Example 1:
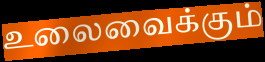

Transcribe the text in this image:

உலைவைக்கும்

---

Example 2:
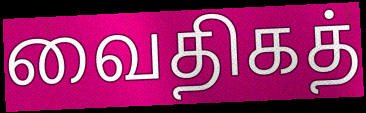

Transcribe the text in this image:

வைதிகத்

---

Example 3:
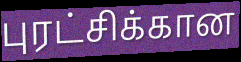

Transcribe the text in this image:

புரட்சிக்கான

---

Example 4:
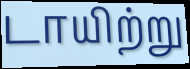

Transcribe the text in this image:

டாயிற்று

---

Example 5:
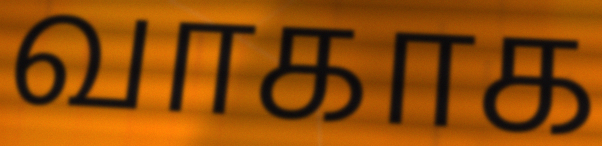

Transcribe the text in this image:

வாகாக